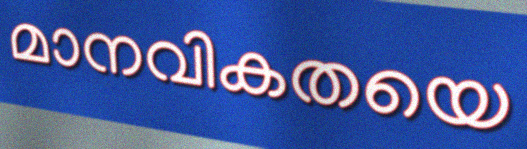
മാനവികതയെ